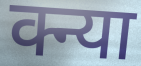
क्न्या